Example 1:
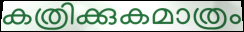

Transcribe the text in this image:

കത്രിക്കുകമാത്രം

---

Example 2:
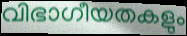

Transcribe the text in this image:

വിഭാഗീയതകളും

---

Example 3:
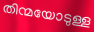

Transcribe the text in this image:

തിന്മയോടുള്ള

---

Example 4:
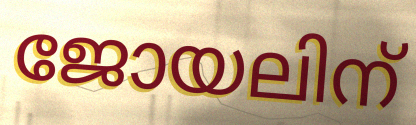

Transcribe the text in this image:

ജോയലിന്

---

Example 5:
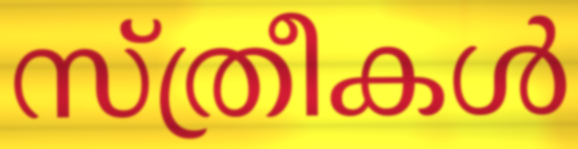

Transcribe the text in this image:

സ്ത്രീകൾ